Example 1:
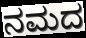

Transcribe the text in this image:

ನಮದ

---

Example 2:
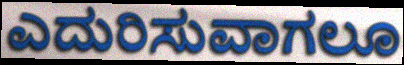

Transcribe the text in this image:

ಎದುರಿಸುವಾಗಲೂ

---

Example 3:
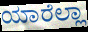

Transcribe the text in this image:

ಯಾರೆಲ್ಲಾ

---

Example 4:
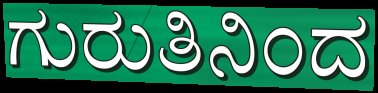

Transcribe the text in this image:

ಗುರುತಿನಿಂದ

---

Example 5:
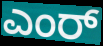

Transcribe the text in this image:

ಎಂರ್